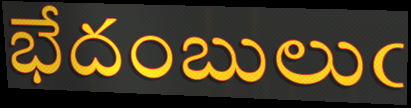
భేదంబులుఁ